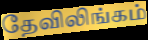
தேவிலிங்கம்